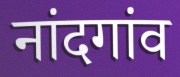
नांदगांव